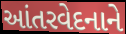
આંતરવેદનાને